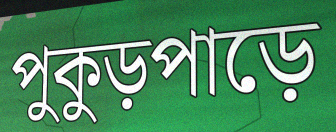
পুকুড়পাড়ে